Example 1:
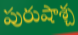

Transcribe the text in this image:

పురుషాశ్చ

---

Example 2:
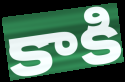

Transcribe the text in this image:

కాకి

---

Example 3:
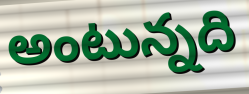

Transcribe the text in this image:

అంటున్నది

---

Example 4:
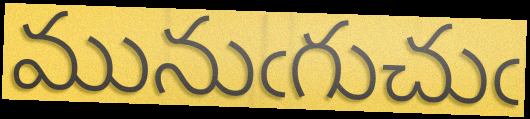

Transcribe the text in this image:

మునుఁగుచుఁ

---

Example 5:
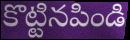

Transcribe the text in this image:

కొట్టినపిండి